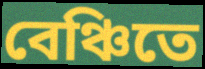
বেঞ্চিতে